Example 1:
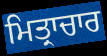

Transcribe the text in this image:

ਮਿਤ੍ਰਾਚਾਰ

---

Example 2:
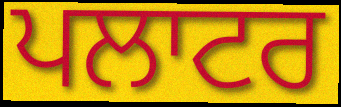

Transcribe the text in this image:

ਪਲਾਟਰ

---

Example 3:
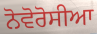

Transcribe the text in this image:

ਨੋਵੋਰੋਸੀਆ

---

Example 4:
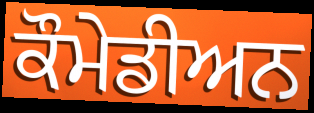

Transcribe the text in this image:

ਕੌਮੇਡੀਅਨ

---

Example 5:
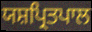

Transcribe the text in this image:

ਯਸ਼ਪ੍ਰਿਤਪਾਲ